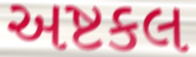
અષ્ટકલ